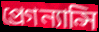
প্রেগন্যান্সি